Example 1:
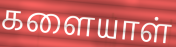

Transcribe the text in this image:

களையாள்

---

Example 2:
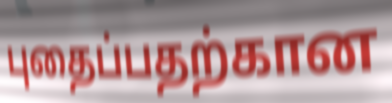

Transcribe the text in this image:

புதைப்பதற்கான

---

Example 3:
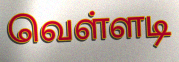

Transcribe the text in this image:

வெள்ளடி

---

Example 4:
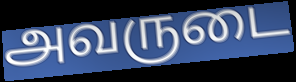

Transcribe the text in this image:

அவருடை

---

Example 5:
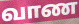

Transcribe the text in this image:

வாண